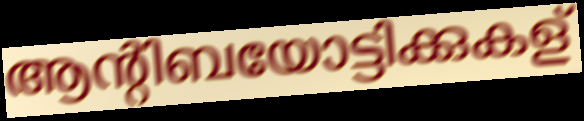
ആന്റിബയോട്ടിക്കുകള്